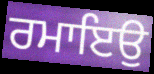
ਰਮਾਇਉ